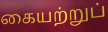
கையற்றுப்